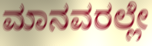
ಮಾನವರಲ್ಲೇ